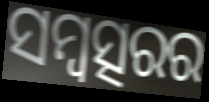
ସମ୍ବତ୍ସରର